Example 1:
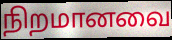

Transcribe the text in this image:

நிறமானவை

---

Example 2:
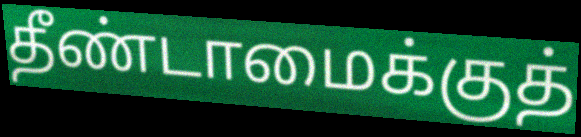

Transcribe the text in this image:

தீண்டாமைக்குத்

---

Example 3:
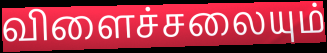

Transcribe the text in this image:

விளைச்சலையும்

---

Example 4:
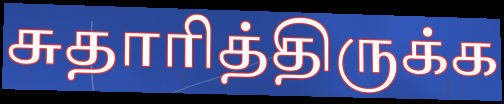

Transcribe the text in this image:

சுதாரித்திருக்க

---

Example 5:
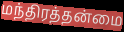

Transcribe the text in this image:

மந்திரத்தன்மை